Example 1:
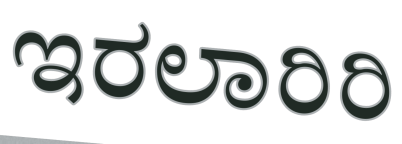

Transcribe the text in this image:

ಇರಲಾರಿರಿ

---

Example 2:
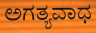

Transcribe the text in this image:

ಅಗತ್ಯವಾಧ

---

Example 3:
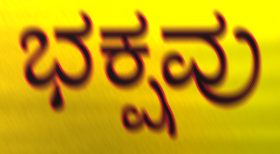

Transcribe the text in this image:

ಭಕ್ಷವು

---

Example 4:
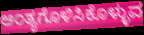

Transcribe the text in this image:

ಅಂತ್ಯಗೊಳಿಸಿಕೊಳ್ಳುವ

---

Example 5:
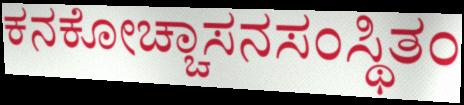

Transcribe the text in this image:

ಕನಕೋಚ್ಚಾಸನಸಂಸ್ಥಿತಂ